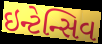
ઇન્ટેન્સિવ